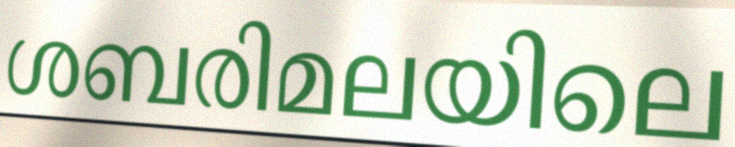
ശബരിമലയിലെ